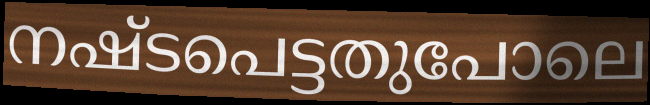
നഷ്ടപെട്ടതുപോലെ